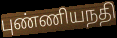
புண்ணியநதி